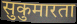
सुकुमारता